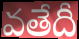
వతేదీ